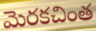
మెరకచింత